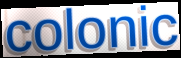
colonic